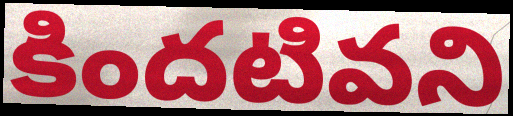
కిందటివని